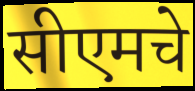
सीएमचे